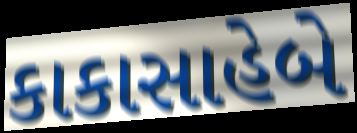
કાકાસાહેબે